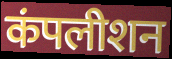
कंपलीशन